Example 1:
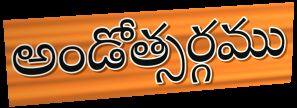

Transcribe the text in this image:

అండోత్సర్గము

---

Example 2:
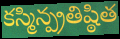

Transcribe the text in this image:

కస్మిన్ప్రతిష్ఠిత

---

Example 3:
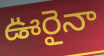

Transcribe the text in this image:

ఊరైనా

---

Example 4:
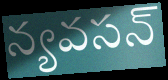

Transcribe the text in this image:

న్యవసన్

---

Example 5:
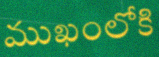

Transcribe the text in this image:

ముఖంలోకి